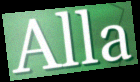
Alla